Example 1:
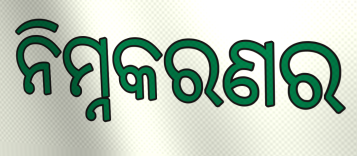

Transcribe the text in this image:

ନିମ୍ନକରଣର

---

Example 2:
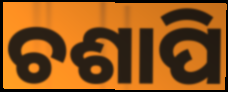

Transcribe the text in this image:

ଚଶାପି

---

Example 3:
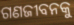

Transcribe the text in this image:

ଗଣଜୀବନକୁ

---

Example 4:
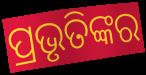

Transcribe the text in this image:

ପ୍ରଭୃତିଙ୍କର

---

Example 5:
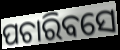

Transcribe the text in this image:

ପଚାରିବସେ